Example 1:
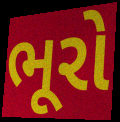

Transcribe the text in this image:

ભૂરો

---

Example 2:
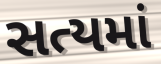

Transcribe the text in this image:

સત્યમાં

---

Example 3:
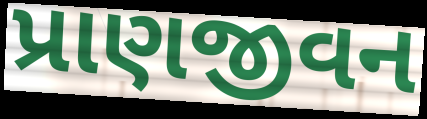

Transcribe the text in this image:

પ્રાણજીવન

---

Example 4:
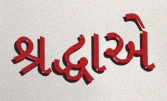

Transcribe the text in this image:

શ્રદ્ધાએ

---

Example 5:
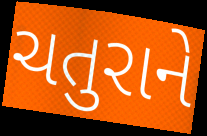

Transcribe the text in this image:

ચતુરાને